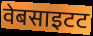
वेबसाइटट